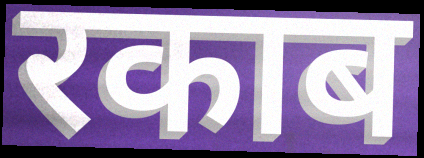
रकाब